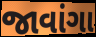
જાવાંગા